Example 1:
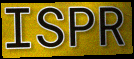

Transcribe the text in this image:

ISPR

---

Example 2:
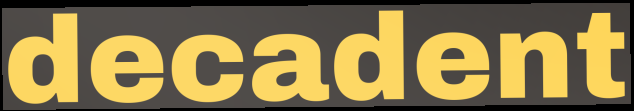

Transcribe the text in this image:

decadent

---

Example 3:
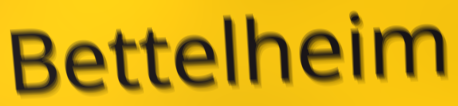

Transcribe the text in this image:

Bettelheim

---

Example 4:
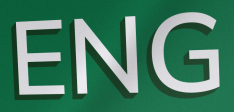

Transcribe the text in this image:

ENG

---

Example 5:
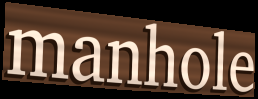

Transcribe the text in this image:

manhole